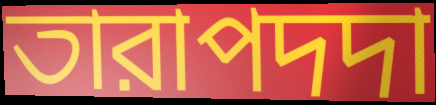
তারাপদদা